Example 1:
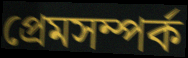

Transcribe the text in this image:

প্রেমসম্পর্ক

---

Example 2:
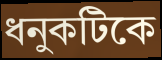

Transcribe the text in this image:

ধনুকটিকে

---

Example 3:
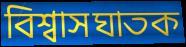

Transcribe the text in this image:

বিশ্বাসঘাতক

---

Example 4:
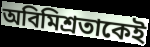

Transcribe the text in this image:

অবিমিশ্রতাকেই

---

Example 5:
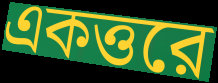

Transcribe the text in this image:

একত্তরে